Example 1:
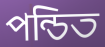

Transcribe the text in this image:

পন্ডিত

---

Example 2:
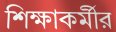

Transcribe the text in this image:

শিক্ষাকর্মীর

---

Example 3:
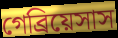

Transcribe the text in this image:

গেব্রিয়েসাস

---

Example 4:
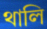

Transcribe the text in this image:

থালি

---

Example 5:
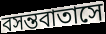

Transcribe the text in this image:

বসন্তবাতাসে